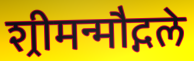
श्रीमन्मौद्गले